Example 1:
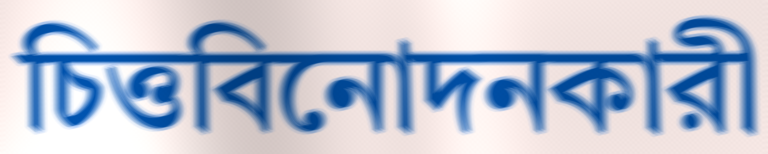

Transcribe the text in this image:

চিত্তবিনোদনকারী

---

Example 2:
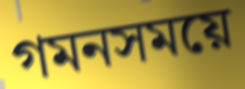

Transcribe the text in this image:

গমনসময়ে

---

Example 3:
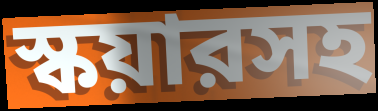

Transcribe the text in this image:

স্কয়ারসহ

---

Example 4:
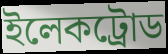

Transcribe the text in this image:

ইলেকট্রোড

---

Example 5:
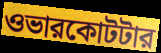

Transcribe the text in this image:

ওভারকোটটার